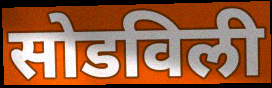
सोडविली